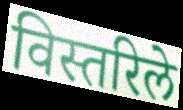
विस्तरिले